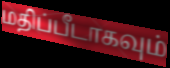
மதிப்பீடாகவும்